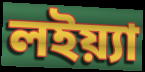
লইয়্যা